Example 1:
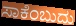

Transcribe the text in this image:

ಸಾಕೆಂಬುದು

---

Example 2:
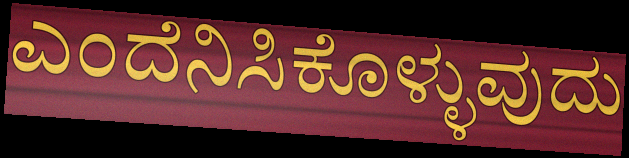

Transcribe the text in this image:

ಎಂದೆನಿಸಿಕೊಳ್ಳುವುದು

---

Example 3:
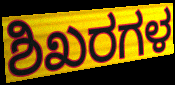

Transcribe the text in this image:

ಶಿಖರಗಳ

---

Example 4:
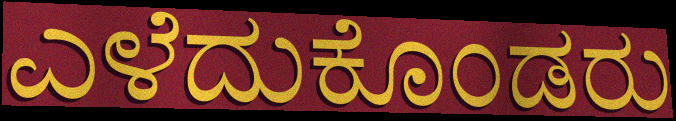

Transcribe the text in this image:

ಎಳೆದುಕೊಂಡರು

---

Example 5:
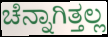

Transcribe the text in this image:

ಚೆನ್ನಾಗಿತ್ತಲ್ಲ